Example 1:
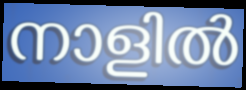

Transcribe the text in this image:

നാളിൽ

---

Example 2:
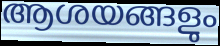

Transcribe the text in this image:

ആശയങ്ങളും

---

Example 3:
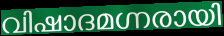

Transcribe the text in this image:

വിഷാദമഗ്നരായി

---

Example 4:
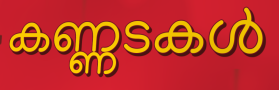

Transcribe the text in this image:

കണ്ണടകൾ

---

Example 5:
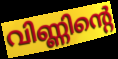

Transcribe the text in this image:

വിണ്ണിന്റെ